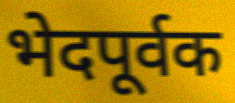
भेदपूर्वक